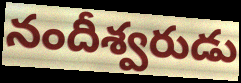
నందీశ్వరుడు